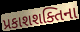
પ્રકાશશક્તિના